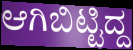
ಆಗಿಬಿಟ್ಟಿದ್ದ